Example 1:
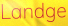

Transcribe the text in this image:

Landge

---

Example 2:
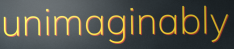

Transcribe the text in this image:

unimaginably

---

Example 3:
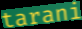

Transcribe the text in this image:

tarani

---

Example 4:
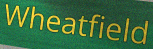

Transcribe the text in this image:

Wheatfield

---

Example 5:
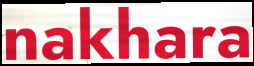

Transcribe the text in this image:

nakhara